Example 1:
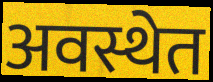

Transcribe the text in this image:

अवस्थेत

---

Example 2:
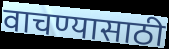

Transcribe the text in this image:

वाचण्यासाठी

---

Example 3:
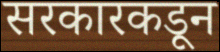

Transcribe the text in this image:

सरकारकडून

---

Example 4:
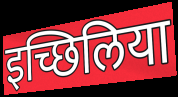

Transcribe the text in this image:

इच्छिलिया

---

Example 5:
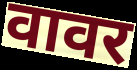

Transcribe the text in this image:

वावर